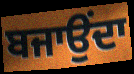
ਬਜਾਉਂਦਾ